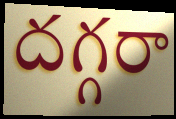
దగ్గరా